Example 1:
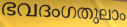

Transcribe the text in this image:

ഭവദംഗതുലാം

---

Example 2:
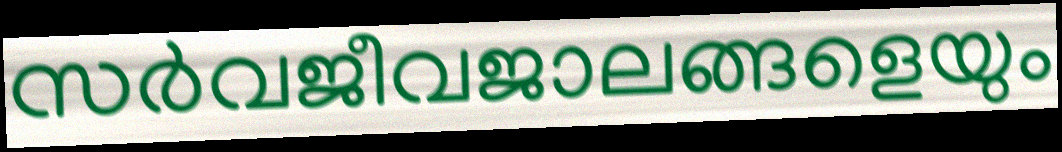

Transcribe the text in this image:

സർവജീവജാലങ്ങളെയും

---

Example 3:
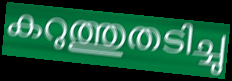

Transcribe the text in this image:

കറുത്തുതടിച്ചു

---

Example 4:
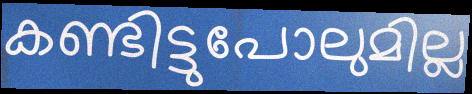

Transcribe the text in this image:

കണ്ടിട്ടുപോലുമില്ല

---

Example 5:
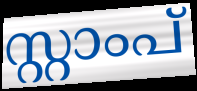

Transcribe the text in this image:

സ്റ്റാംപ്